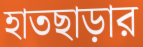
হাতছাড়ার